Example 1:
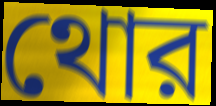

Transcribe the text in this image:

থোর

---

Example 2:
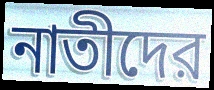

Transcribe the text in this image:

নাতীদের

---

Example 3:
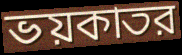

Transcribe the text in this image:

ভয়কাতর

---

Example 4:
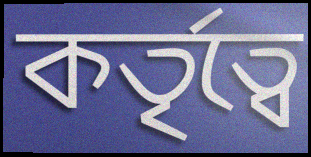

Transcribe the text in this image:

কর্তৃত্বে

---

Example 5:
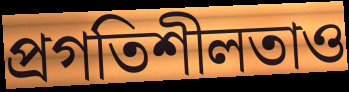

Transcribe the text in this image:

প্রগতিশীলতাও